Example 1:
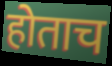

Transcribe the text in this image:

होताच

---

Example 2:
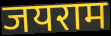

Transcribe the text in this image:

जयराम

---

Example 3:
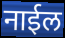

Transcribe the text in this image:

नाईल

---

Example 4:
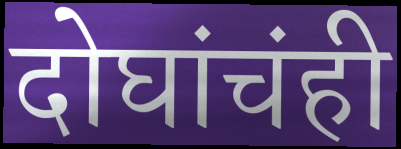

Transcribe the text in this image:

दोघांचंही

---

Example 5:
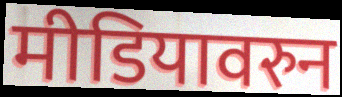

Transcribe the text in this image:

मीडियावरुन